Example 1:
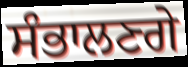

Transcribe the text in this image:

ਸੰਭਾਲਣਗੇ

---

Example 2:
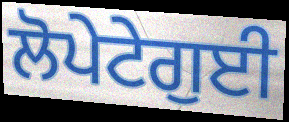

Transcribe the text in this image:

ਲੋਪੇਟੇਗੁਈ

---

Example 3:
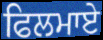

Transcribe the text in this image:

ਫਿਲਮਾਏ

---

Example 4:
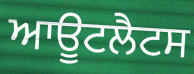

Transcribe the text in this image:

ਆਊਟਲੈਟਸ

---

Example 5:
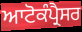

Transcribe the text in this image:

ਆਟੋਕੰਪ੍ਰੈਸਰ